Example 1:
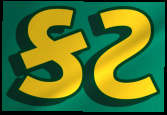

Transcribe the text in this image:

કટ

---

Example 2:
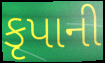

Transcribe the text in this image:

કૃપાની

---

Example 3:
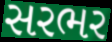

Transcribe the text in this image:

સરભર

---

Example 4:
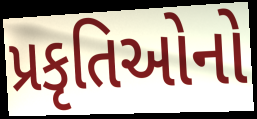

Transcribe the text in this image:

પ્રકૃતિઓનો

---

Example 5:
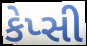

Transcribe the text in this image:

કેપ્સી